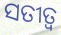
ସତୀତ୍ଵ